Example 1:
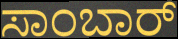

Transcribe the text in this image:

ಸಾಂಬಾರ್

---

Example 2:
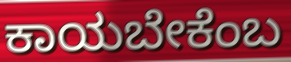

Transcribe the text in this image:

ಕಾಯಬೇಕೆಂಬ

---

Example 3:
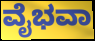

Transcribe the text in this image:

ವೈಭವಾ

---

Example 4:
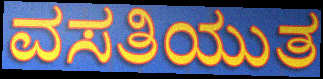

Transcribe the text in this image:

ವಸತಿಯುತ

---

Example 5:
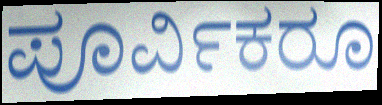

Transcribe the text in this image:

ಪೂರ್ವಿಕರೂ